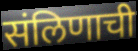
संलिणाची